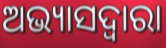
ଅଭ୍ୟାସଦ୍ୱାରା